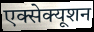
एक्सेक्यूशन